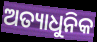
ଅତ୍ୟାଧୁନିକ